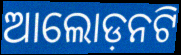
ଆଲୋଡ଼ନଟି